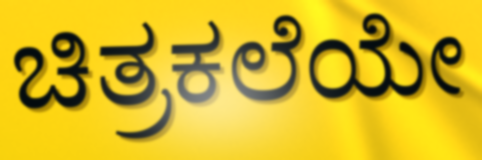
ಚಿತ್ರಕಲೆಯೇ